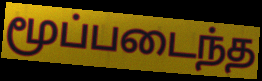
மூப்படைந்த